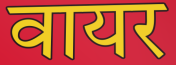
वायर